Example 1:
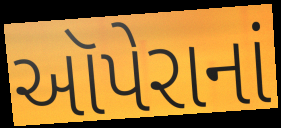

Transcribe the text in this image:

ઑપેરાનાં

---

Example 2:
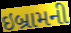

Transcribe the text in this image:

ઇબ્રામની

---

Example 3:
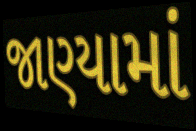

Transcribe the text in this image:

જાણ્યામાં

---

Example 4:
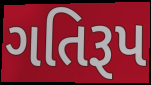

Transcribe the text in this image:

ગતિરૂપ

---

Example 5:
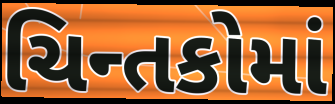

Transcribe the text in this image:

ચિન્તકોમાં